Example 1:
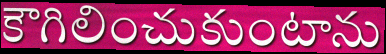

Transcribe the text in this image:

కౌగిలించుకుంటాను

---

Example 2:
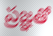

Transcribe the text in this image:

ప్రజ్ఞతో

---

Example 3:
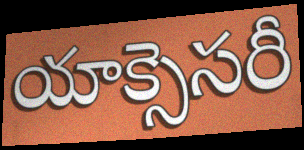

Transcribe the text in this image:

యాక్సెసరీ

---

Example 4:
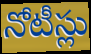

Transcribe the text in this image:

నోటీస్లు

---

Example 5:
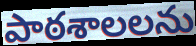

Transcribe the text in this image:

పాఠశాలలను